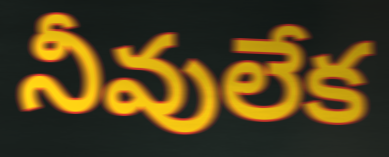
నీవులేక